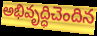
అభివృద్ధిచెందిన